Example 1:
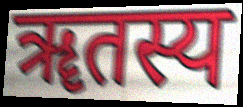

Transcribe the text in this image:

ॠतस्य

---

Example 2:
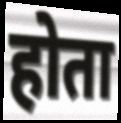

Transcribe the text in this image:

होता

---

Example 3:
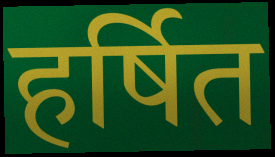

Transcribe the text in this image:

हर्षित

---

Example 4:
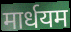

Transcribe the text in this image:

मार्धयम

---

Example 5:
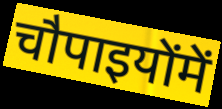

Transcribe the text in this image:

चौपाइयोंमें